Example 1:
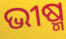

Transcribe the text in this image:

ଭୀଷ୍ମ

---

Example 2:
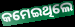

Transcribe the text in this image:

କମେଇଥିଲେ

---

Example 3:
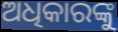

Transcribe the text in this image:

ଅଧିକାରଙ୍କୁ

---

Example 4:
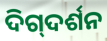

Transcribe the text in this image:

ଦିଗ୍‍ଦର୍ଶନ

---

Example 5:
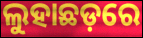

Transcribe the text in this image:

ଲୁହାଛଡ଼ରେ